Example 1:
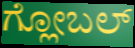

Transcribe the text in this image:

ಗ್ಲೋಬಲ್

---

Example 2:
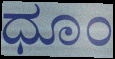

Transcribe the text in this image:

ಧೂಂ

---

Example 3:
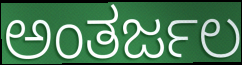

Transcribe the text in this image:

ಅಂತರ್ಜಲ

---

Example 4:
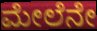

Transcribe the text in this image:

ಮೇಲೆನೇ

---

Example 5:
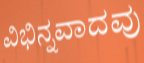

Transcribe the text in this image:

ವಿಭಿನ್ನವಾದವು